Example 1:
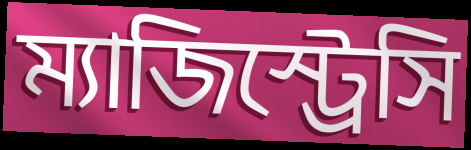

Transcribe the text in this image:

ম্যাজিস্ট্রেসি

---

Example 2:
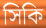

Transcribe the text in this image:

সিকি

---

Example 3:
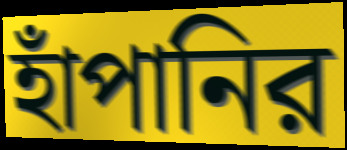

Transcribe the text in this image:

হাঁপানির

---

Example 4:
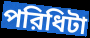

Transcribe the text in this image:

পরিধিটা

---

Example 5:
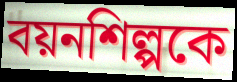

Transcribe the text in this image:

বয়নশিল্পকে